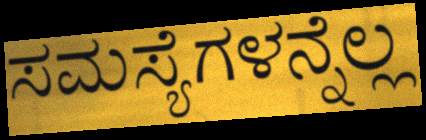
ಸಮಸ್ಯೆಗಳನ್ನೆಲ್ಲ